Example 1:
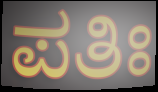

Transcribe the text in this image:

ಪತಿಃ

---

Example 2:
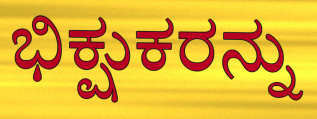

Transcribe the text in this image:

ಭಿಕ್ಷುಕರನ್ನು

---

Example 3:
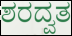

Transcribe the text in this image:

ಶರದ್ವತ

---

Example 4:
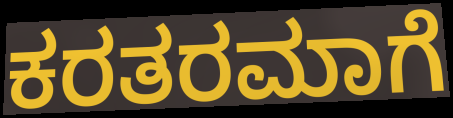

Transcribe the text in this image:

ಕರತರಮಾಗೆ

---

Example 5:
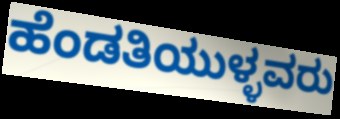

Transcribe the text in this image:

ಹೆಂಡತಿಯುಳ್ಳವರು